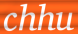
chhu